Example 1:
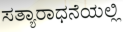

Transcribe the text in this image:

ಸತ್ಯಾರಾಧನೆಯಲ್ಲಿ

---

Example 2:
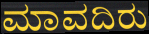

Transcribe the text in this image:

ಮಾವದಿರು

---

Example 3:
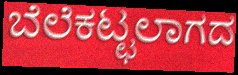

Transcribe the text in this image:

ಬೆಲೆಕಟ್ಟಲಾಗದ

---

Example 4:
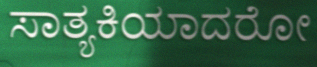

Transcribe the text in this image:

ಸಾತ್ಯಕಿಯಾದರೋ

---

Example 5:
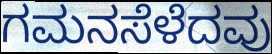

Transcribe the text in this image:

ಗಮನಸೆಳೆದವು